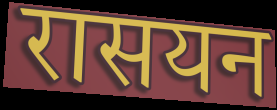
रासयन